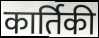
कार्तिकी